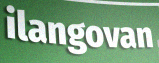
ilangovan